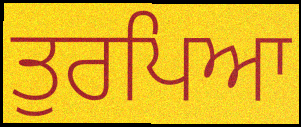
ਤੁਰਪਿਆ